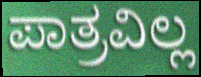
ಪಾತ್ರವಿಲ್ಲ